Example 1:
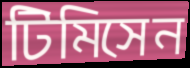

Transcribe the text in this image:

টিমিসেন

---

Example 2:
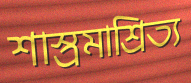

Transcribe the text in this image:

শাস্ত্রমাশ্রিত্য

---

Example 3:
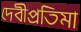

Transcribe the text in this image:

দেবীপ্রতিমা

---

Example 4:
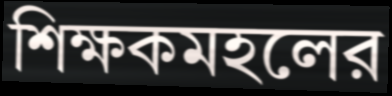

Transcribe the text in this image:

শিক্ষকমহলের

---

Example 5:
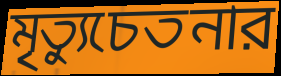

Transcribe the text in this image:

মৃত্যুচেতনার